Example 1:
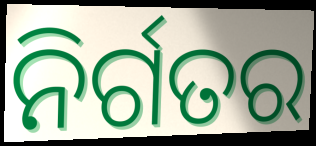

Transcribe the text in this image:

ନିର୍ଗତର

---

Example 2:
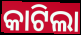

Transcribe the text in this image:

କାଟିଲା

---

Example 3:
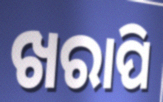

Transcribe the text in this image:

ଖରାପି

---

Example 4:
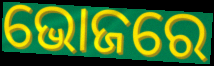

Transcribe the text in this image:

ଭୋଜରେ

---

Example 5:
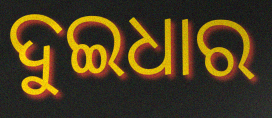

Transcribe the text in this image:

ଦୁଇଧାର